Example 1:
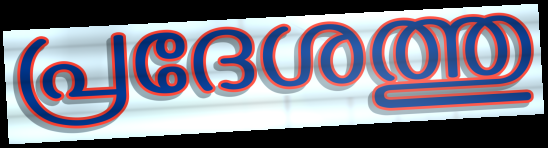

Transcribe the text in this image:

പ്രദേശത്തു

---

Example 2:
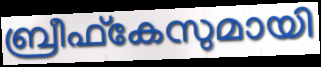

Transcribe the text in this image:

ബ്രീഫ്കേസുമായി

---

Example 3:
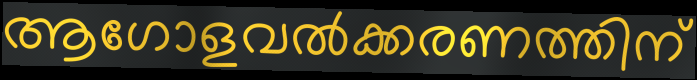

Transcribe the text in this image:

ആഗോളവൽക്കരണത്തിന്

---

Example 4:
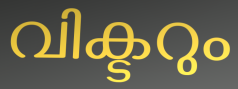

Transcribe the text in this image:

വിക്ടറും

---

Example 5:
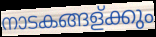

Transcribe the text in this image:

നാടകങ്ങള്ക്കും